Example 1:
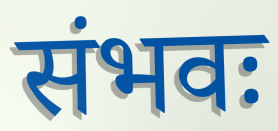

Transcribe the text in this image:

संभवः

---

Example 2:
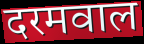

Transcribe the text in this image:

दरमवाल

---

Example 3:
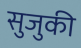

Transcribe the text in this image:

सुजुकी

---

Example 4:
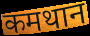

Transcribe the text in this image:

कमथान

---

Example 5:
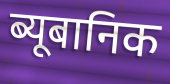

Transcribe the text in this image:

ब्यूबानिक